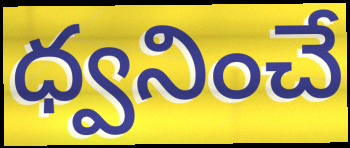
ధ్వనించే